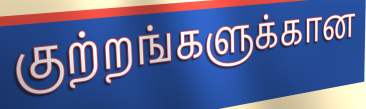
குற்றங்களுக்கான